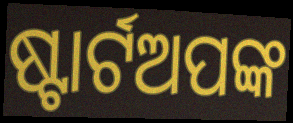
ଷ୍ଟାର୍ଟଅପଙ୍କ